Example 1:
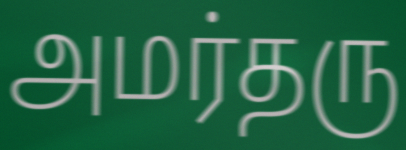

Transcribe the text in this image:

அமர்தரு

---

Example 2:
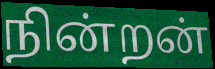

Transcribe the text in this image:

நின்றன்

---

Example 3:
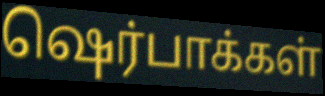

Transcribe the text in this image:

ஷெர்பாக்கள்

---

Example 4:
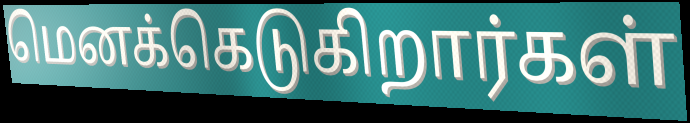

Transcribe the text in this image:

மெனக்கெடுகிறார்கள்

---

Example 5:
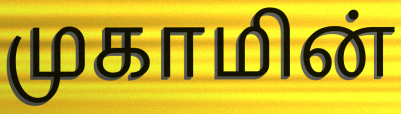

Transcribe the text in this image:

முகாமின்